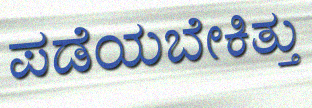
ಪಡೆಯಬೇಕಿತ್ತು